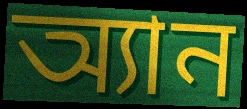
অ্যান